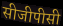
सीजीपीसी